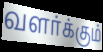
வளர்க்கும்